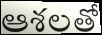
ఆశలతో